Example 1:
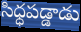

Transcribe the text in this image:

సిధ్ధపడ్డాడు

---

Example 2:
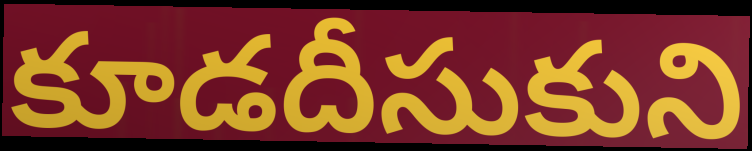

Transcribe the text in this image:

కూడదీసుకుని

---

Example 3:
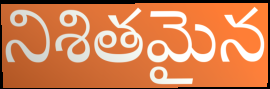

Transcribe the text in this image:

నిశితమైన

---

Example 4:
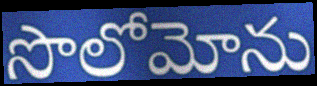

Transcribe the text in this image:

సొలోమోను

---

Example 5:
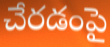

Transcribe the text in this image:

చేరడంపై